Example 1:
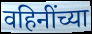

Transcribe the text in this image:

वहिनींच्या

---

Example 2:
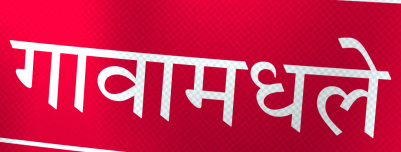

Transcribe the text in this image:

गावामधले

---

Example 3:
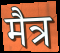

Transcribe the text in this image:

मैत्र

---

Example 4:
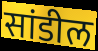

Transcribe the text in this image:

सांडील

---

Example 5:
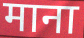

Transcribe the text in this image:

माना